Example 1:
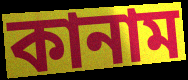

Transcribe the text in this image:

কানাম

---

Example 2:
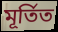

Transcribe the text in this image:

মূৰ্তিত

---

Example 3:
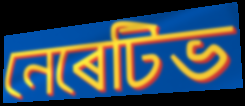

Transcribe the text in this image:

নেৰেটিভ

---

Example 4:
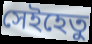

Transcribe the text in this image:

সেইহেতু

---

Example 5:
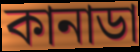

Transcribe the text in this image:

কানাডা